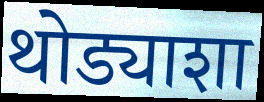
थोड्याशा